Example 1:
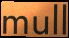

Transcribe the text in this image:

mull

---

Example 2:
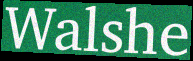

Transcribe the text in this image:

Walshe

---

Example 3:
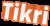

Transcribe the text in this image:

Tikri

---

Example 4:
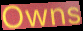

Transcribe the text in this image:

Owns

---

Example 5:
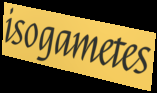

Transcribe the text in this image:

isogametes